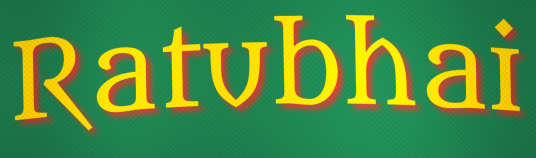
Ratubhai